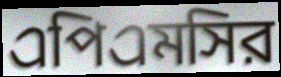
এপিএমসির